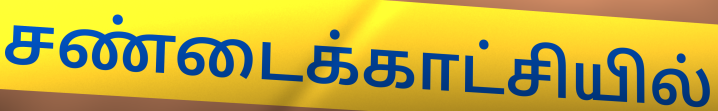
சண்டைக்காட்சியில்